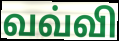
வவ்வி